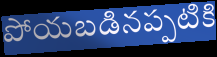
పోయబడినప్పటికి